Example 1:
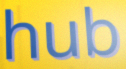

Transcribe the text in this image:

hub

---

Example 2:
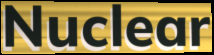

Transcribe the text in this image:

Nuclear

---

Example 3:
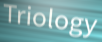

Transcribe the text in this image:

Triology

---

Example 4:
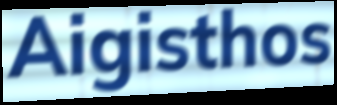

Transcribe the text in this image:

Aigisthos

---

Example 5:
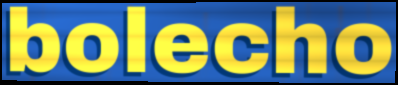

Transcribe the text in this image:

bolecho